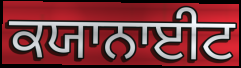
ਕਯਾਨਾਈਟ